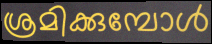
ശ്രമിക്കുമ്പോൾ